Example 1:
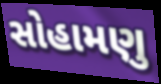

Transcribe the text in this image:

સોહામણુ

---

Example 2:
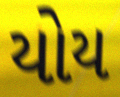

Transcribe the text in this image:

યોય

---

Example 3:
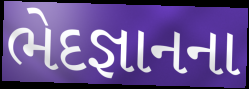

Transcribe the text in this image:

ભેદજ્ઞાનના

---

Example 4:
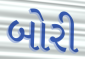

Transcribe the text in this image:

બોરી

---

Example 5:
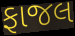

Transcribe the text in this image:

ફાજલ